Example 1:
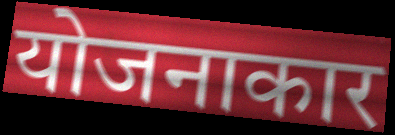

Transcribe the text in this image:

योजनाकार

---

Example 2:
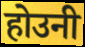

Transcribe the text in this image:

होउनी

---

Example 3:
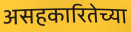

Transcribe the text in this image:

असहकारितेच्या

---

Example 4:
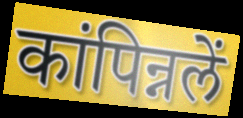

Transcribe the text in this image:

कांपिन्नलें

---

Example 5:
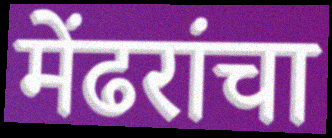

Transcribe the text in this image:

मेंढरांचा